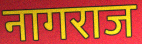
नागराज